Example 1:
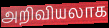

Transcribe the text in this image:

அறிவியலாக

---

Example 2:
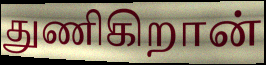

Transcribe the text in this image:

துணிகிறான்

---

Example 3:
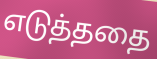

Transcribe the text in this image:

எடுத்ததை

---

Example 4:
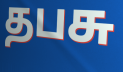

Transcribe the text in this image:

தபசு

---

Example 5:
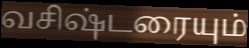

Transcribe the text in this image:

வசிஷ்டரையும்